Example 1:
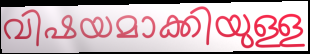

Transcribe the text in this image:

വിഷയമാക്കിയുള്ള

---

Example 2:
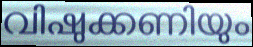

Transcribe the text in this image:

വിഷുക്കണിയും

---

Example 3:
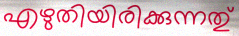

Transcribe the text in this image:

എഴുതിയിരിക്കുന്നതു്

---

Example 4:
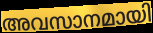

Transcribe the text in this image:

അവസാനമായി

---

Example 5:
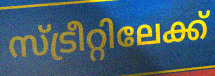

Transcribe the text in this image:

സ്ട്രീറ്റിലേക്ക്